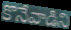
కొనేవాడిని